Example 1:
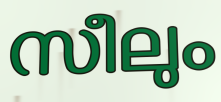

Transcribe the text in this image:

സീലും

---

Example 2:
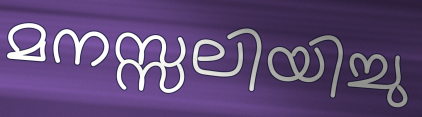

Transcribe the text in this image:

മനസ്സലിയിച്ചു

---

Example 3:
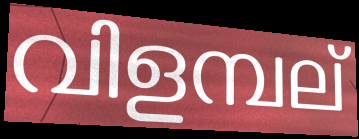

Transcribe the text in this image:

വിളമ്പല്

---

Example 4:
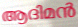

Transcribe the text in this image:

ആദിമൻ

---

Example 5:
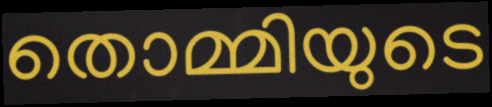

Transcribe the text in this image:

തൊമ്മിയുടെ